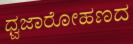
ಧ್ವಜಾರೋಹಣದ